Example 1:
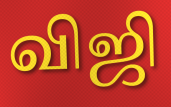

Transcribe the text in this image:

விஜி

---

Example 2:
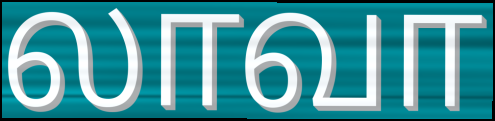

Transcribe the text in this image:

லாவா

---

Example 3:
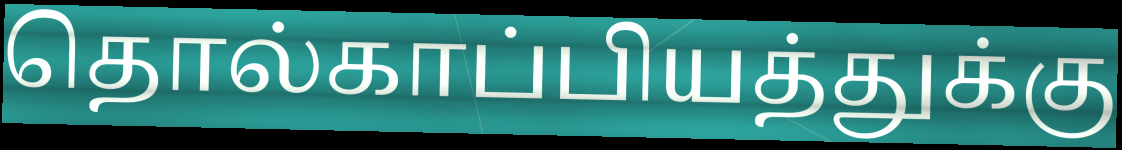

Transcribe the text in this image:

தொல்காப்பியத்துக்கு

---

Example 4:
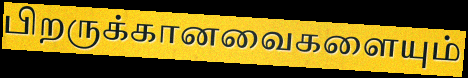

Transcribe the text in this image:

பிறருக்கானவைகளையும்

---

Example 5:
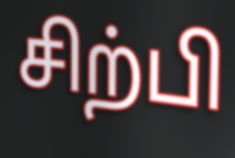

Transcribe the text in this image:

சிற்பி